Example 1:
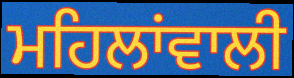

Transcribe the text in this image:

ਮਹਿਲਾਂਵਾਲੀ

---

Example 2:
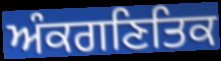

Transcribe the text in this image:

ਅੰਕਗਣਿਤਿਕ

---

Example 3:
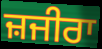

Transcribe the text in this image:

ਜ਼ਜੀਰਾ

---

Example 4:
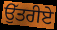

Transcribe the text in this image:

ਉੱਤਰੀਏ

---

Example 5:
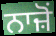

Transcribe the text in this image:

ਨਾਜ਼ੋਂ